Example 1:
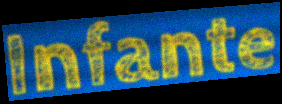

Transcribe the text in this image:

Infante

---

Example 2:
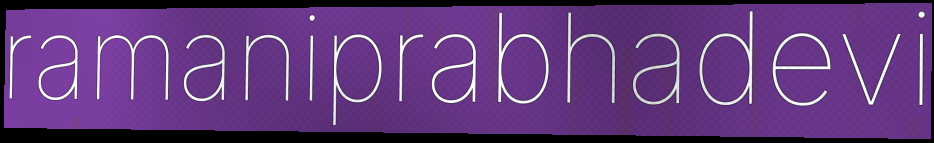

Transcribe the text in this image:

ramaniprabhadevi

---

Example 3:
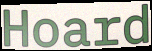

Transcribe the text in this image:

Hoard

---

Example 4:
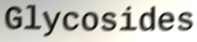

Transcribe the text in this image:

Glycosides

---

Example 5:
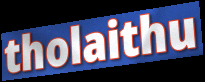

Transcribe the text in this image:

tholaithu